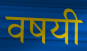
वषयी